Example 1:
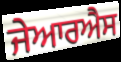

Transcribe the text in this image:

ਜੇਆਰਐਸ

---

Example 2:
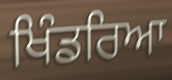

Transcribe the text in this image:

ਖਿੰਡਰਿਆ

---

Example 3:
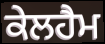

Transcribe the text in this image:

ਕੇਲਹੈਮ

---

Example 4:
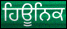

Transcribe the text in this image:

ਹਿਊਨਿਕ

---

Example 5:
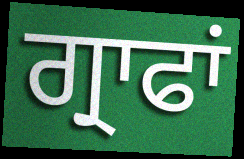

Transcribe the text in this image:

ਗ੍ਰਾਫਾਂ